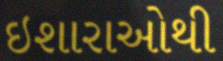
ઇશારાઓથી